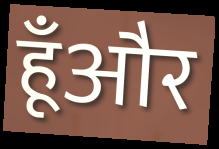
हूँऔर